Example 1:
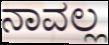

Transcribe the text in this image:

ನಾವಲ್ಲ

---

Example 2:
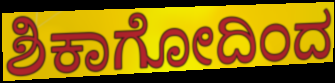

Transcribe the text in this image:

ಶಿಕಾಗೋದಿಂದ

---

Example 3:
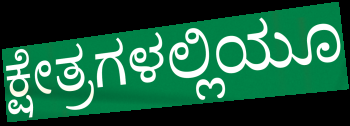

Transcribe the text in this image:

ಕ್ಷೇತ್ರಗಳಲ್ಲಿಯೂ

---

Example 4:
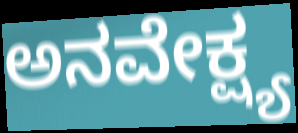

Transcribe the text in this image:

ಅನವೇಕ್ಷ್ಯ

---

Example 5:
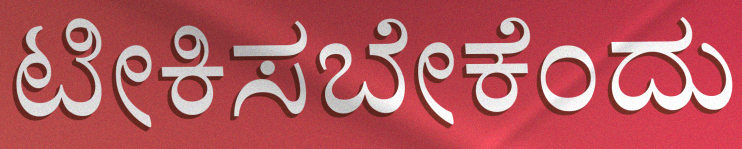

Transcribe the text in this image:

ಟೀಕಿಸಬೇಕೆಂದು